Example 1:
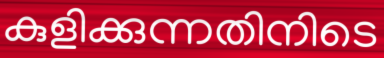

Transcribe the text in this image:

കുളിക്കുന്നതിനിടെ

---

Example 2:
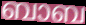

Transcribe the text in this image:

ബാബ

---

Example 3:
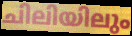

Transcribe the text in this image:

ചിലിയിലും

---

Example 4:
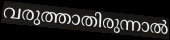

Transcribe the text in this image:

വരുത്താതിരുന്നാൽ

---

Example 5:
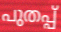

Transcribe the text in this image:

പുതപ്പ്